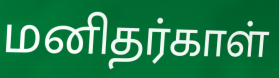
மனிதர்காள்